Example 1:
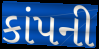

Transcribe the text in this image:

કાંપની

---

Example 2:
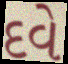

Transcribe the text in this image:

દવે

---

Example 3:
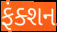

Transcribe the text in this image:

ફંક્શન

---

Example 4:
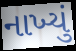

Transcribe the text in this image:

નાખ્યું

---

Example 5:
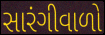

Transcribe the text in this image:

સારંગીવાળો